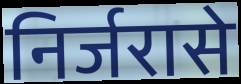
निर्जरासे